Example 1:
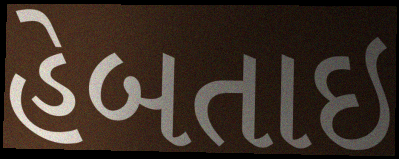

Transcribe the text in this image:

હેબતાઇ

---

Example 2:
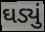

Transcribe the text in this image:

ઘડ્યું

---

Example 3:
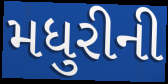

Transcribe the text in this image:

મધુરીની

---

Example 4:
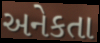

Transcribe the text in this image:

અનેકતા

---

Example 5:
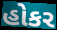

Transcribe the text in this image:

હોકર